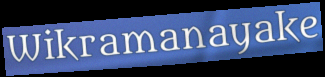
Wikramanayake